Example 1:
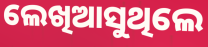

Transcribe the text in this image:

ଲେଖିଆସୁଥିଲେ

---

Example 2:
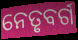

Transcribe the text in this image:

ନେତୃବର୍ଗ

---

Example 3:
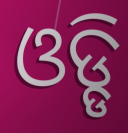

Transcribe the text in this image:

ଓଡ୍ଡି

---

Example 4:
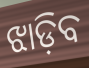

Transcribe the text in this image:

ଝାଡ଼ିବ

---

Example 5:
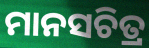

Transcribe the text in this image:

ମାନସଚିତ୍ର